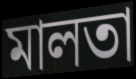
মালতা